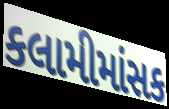
કલામીમાંસક